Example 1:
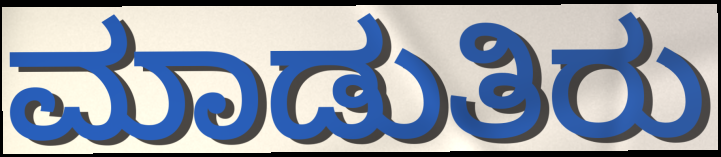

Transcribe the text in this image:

ಮಾಡುತಿರು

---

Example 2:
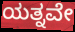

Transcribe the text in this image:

ಯತ್ನವೇ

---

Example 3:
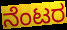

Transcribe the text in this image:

ನೆಂಟರ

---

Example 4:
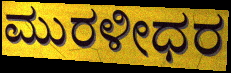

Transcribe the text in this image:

ಮುರಳೀಧರ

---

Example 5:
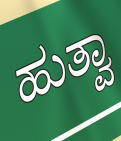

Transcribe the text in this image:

ಹುತ್ವಾ